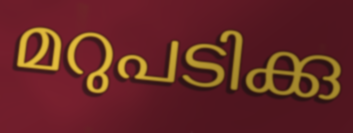
മറുപടിക്കു